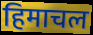
हिमाचल